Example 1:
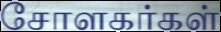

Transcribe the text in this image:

சோளகர்கள்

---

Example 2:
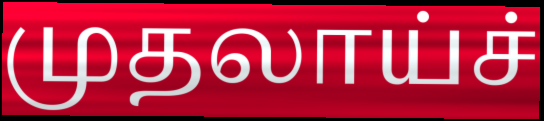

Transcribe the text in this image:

முதலாய்ச்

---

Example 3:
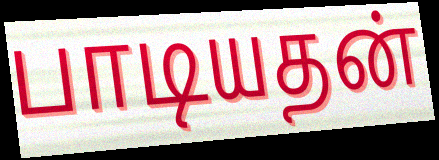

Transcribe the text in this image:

பாடியதன்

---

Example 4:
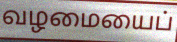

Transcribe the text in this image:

வழமையைப்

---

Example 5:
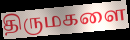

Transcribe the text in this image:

திருமகளை